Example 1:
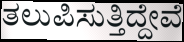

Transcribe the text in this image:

ತಲುಪಿಸುತ್ತಿದ್ದೇವೆ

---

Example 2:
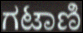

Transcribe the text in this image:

ಗಟಾಣಿ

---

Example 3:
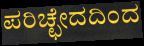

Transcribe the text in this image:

ಪರಿಚ್ಛೇದದಿಂದ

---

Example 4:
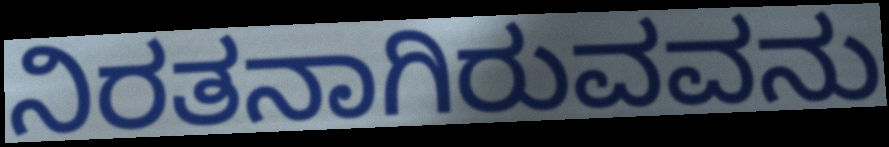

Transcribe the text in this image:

ನಿರತನಾಗಿರುವವನು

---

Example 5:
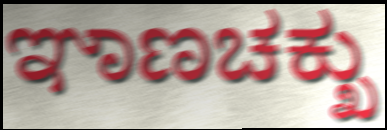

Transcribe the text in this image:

ಞಾಣಚಕ್ಖು